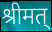
श्रीमत्